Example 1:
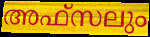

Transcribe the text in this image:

അഫ്സലും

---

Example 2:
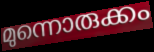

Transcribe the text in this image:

മുന്നൊരുക്കം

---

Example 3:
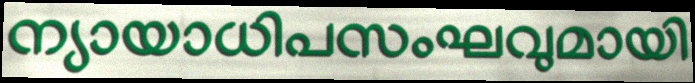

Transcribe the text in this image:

ന്യായാധിപസംഘവുമായി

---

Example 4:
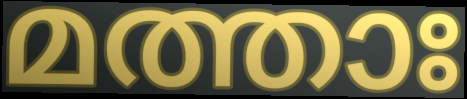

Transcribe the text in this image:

മത്താഃ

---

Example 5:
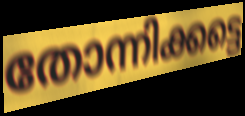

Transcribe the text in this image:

തോന്നിക്കട്ടെ